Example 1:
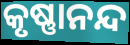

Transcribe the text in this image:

କୃଷ୍ଣାନନ୍ଦ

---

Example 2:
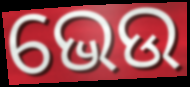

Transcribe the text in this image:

ଭେଉ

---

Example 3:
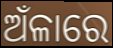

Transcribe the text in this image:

ଅଁଳାରେ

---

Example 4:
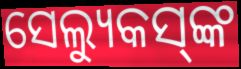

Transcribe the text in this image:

ସେଲ୍ୟୁକସ୍‌ଙ୍କ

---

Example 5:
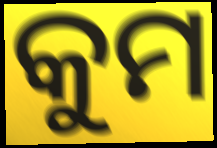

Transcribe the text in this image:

କୁମ